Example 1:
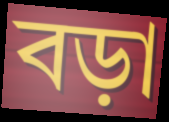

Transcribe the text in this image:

বড়া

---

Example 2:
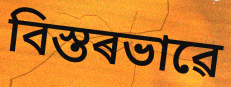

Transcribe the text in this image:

বিস্তৰভাৱে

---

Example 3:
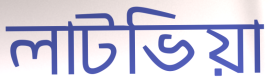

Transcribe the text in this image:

লাটভিয়া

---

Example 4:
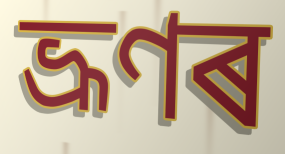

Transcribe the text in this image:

ভ্ৰূণৰ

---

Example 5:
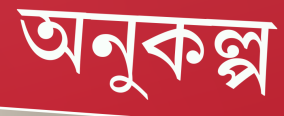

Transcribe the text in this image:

অনুকল্প